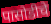
पासोडीचे